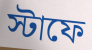
স্টাফে